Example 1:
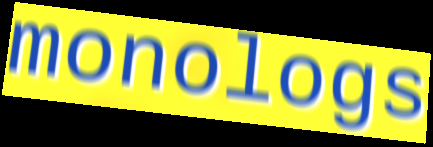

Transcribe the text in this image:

monologs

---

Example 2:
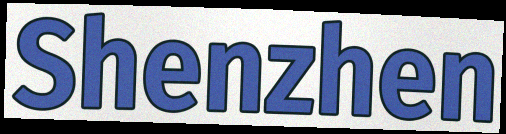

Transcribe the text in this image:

Shenzhen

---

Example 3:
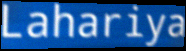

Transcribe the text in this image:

Lahariya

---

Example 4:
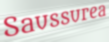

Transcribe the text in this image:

Saussurea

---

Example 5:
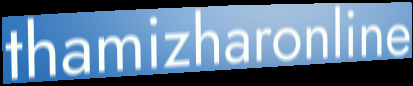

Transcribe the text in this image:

thamizharonline